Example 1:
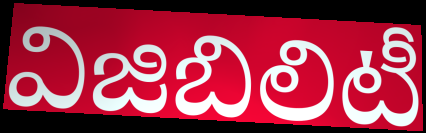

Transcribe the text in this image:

విజిబిలిటీ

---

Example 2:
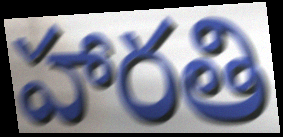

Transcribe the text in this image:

హారతి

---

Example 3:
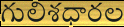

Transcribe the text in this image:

గులిశధారల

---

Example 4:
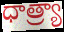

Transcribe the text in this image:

ధాత్ర్యా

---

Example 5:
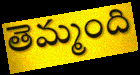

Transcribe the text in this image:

తెమ్మంది